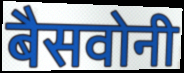
बैसवोनी